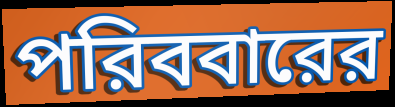
পরিববারের